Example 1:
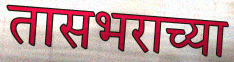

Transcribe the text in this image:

तासभराच्या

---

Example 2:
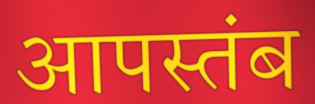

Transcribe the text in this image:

आपस्तंब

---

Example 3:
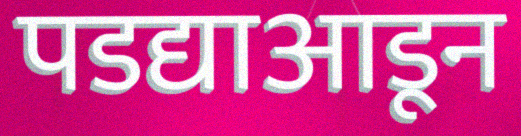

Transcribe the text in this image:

पडद्याआडून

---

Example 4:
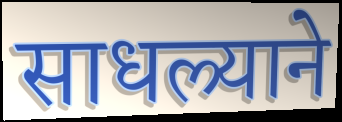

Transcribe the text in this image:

साधल्याने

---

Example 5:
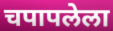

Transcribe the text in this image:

चपापलेला